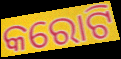
କରୋଟି